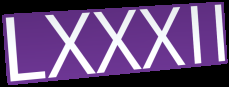
LXXXII